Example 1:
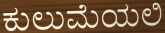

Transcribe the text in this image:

ಕುಲುಮೆಯಲಿ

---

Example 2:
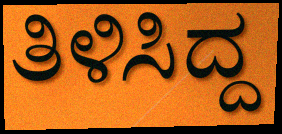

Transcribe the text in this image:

ತಿಳಿಸಿದ್ದ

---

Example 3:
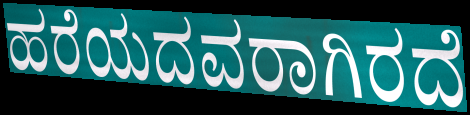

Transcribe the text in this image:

ಹರೆಯದವರಾಗಿರದೆ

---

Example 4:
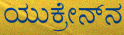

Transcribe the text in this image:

ಯುಕ್ರೇನ್‌ನ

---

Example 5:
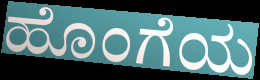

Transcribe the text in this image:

ಹೊಂಗೆಯ